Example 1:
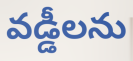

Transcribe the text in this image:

వడ్డీలను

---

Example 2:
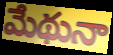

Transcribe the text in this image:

మేథునా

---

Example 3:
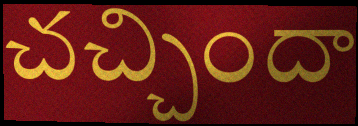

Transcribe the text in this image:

చచ్చిందా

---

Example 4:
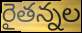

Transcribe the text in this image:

రైతన్నల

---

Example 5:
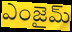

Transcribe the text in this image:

ఎంజైమ్